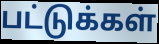
பட்டுக்கள்